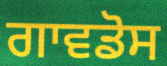
ਗਾਵਡੋਸ